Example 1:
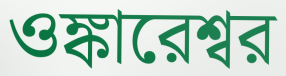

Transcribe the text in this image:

ওঙ্কারেশ্বর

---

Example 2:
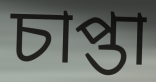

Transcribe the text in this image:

চাপ্তা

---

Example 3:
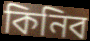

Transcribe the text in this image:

কিনিব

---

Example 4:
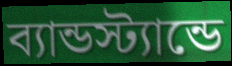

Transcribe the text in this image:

ব্যান্ডস্ট্যান্ডে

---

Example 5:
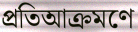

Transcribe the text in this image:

প্রতিআক্রমণে